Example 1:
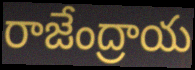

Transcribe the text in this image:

రాజేంద్రాయ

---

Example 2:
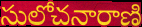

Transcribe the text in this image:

సులోచనారాణి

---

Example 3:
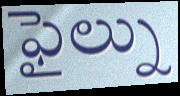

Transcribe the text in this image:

ఫైల్ను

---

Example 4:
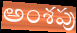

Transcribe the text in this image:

అంశపు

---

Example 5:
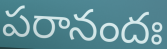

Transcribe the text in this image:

పరానందః